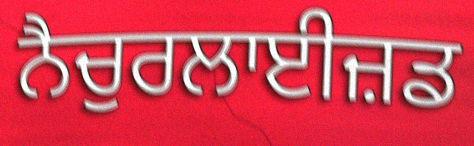
ਨੈਚੁਰਲਾਈਜ਼ਡ